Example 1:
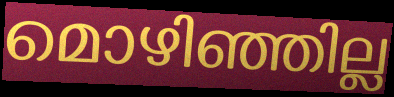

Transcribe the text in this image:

മൊഴിഞ്ഞില്ല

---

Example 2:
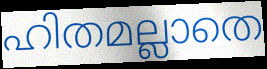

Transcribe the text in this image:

ഹിതമല്ലാതെ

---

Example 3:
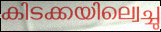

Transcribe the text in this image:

കിടക്കയില്വെച്ചു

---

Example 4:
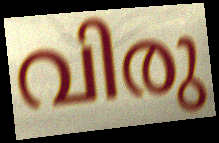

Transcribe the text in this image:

വിരു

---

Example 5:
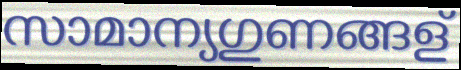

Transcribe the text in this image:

സാമാന്യഗുണങ്ങള്